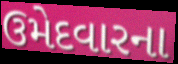
ઉમેદવારના